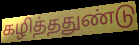
கழித்ததுண்டு